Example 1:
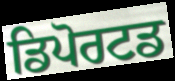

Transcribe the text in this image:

ਡਿਪੋਰਟਡ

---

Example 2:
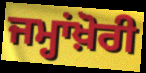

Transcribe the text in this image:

ਜਮ੍ਹਾਂਖ਼ੋਰੀ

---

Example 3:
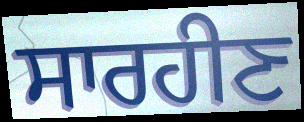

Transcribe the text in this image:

ਸਾਰਹੀਣ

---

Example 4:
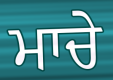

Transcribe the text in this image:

ਮਾਚੇ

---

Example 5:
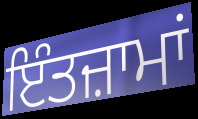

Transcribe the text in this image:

ਇੰਤਜ਼ਾਮਾਂ